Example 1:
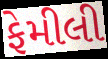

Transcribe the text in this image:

ફેમીલી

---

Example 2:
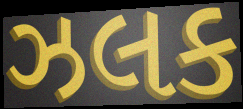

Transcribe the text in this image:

ઝલક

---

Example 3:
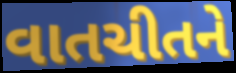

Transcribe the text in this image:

વાતચીતને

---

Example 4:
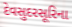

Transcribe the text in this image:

દેવસુદરસૂરિના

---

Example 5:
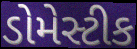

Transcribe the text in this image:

ડોમેસ્ટીક